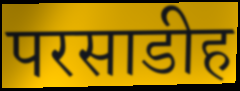
परसाडीह